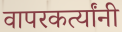
वापरकर्त्यांनी